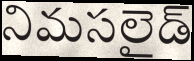
నిమసలైడ్